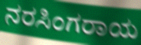
ನರಸಿಂಗರಾಯ